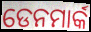
ଡେନମାର୍କ